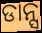
ଡାନ୍ସ